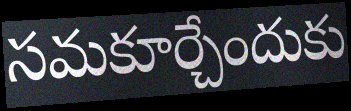
సమకూర్చేందుకు